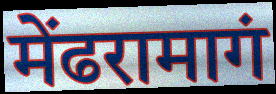
मेंढरामागं